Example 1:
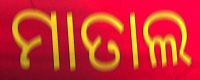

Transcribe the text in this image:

ମାତାଲ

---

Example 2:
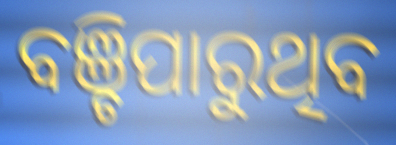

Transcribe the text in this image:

ବଞ୍ଚିପାରୁଥିବ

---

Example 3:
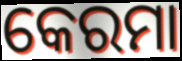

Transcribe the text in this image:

କେରମା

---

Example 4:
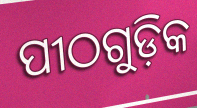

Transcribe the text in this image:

ପୀଠଗୁଡ଼ିକ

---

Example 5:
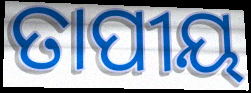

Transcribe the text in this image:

ତାପୀୟ